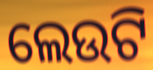
ଲେଉଟି